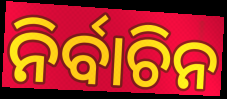
ନିର୍ବାଚିନ